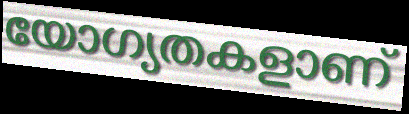
യോഗ്യതകളാണ്